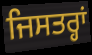
ਜਿਸਤਰ੍ਹਾਂ